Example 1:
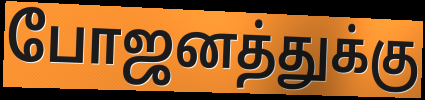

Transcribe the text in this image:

போஜனத்துக்கு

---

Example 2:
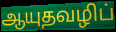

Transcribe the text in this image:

ஆயுதவழிப்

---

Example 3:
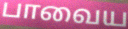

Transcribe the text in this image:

பாவைய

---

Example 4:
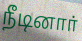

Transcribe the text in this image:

நீடினார்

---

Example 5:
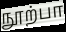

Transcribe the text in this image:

நூற்பா